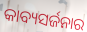
କାବ୍ୟସର୍ଜନାର